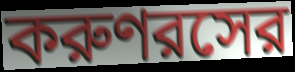
করুণরসের